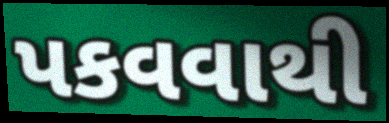
પકવવાથી